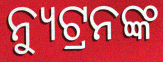
ନ୍ୟୁଟ୍ରନଙ୍କ